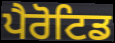
ਪੈਰੋਟਿਡ